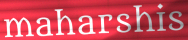
maharshis